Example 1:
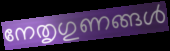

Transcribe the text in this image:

നേതൃഗുണങ്ങൾ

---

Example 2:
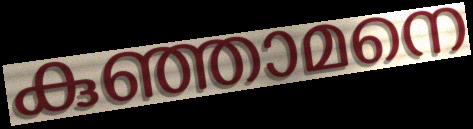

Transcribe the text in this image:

കുഞ്ഞാമനെ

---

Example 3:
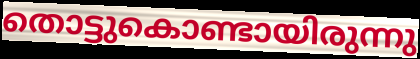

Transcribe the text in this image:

തൊട്ടുകൊണ്ടായിരുന്നു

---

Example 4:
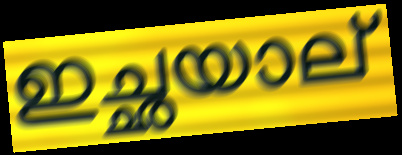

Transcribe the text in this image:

ഇച്ഛയാല്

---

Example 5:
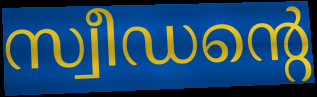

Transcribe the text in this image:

സ്വീഡന്റെ